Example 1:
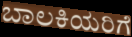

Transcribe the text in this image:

ಬಾಲಕಿಯರಿಗೆ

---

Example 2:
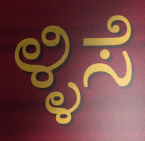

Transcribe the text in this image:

ಳ್ಳಿಸೆ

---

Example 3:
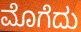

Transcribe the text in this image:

ಮೊಗೆದು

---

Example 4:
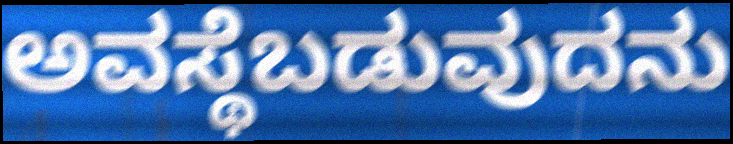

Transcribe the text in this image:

ಅವಸ್ಥೆಬಡುವುದನು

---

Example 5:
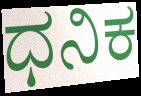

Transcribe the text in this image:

ಧನಿಕ